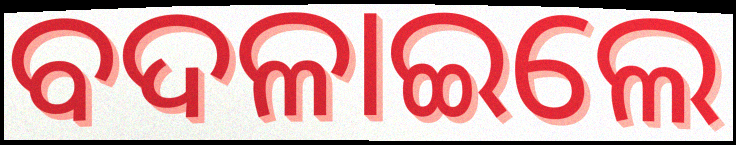
ବଦଳାଇଲେ